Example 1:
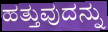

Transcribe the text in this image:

ಹತ್ತುವುದನ್ನು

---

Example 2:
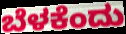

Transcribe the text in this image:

ಬೆಳಕೆಂದು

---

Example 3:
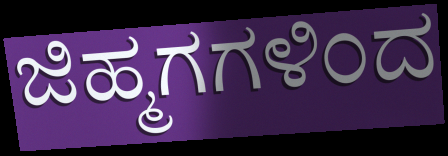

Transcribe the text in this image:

ಜಿಹ್ಮಗಗಳಿಂದ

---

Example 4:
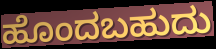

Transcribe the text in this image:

ಹೊಂದಬಹುದು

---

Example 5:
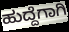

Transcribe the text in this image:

ಹುದ್ದೆಗಾಗಿ